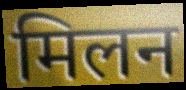
मिलन